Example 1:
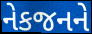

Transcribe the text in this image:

નેકજનને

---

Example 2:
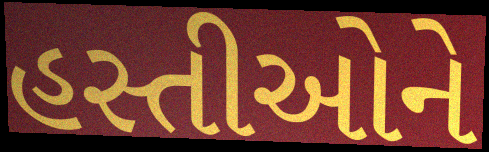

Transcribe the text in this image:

હસ્તીઓને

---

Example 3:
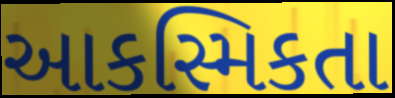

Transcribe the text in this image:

આકસ્મિકતા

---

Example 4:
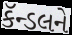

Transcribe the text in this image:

કૅન્ડલને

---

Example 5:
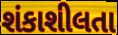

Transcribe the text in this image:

શંકાશીલતા